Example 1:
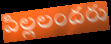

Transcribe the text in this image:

పిల్లలందరు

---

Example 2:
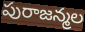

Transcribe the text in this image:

పురాజన్మల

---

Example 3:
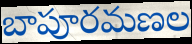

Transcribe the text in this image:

బాపూరమణల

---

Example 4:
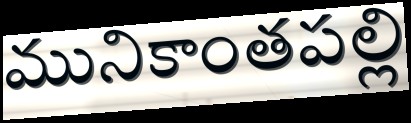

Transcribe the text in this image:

మునికాంతపల్లి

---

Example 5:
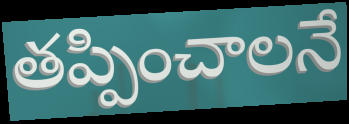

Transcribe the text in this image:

తప్పించాలనే